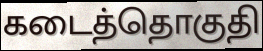
கடைத்தொகுதி